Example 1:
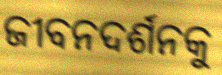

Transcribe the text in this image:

ଜୀବନଦର୍ଶନକୁ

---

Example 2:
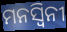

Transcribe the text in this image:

ମନସ୍ୱିନୀ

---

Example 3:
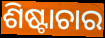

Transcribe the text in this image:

ଶିଷ୍ଟାଚାର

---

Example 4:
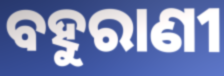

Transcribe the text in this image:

ବହୁରାଣୀ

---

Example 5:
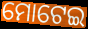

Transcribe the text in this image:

ମୋଟେଇ